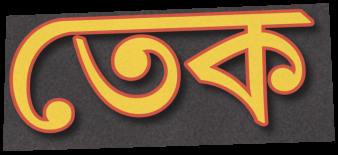
তেক